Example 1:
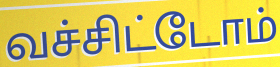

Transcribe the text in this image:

வச்சிட்டோம்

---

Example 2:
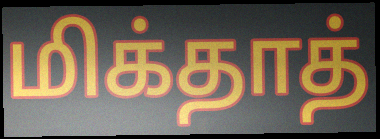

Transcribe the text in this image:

மிக்தாத்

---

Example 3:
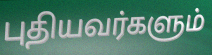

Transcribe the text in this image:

புதியவர்களும்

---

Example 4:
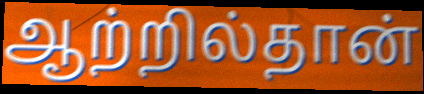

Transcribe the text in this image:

ஆற்றில்தான்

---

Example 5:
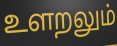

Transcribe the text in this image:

உளறலும்